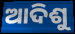
ଆଦିଶୁ